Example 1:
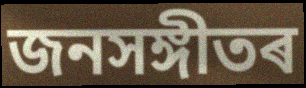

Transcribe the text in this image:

জনসঙ্গীতৰ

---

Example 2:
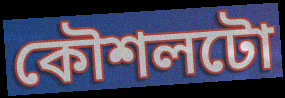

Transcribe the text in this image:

কৌশলটো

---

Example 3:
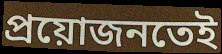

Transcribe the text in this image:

প্ৰয়োজনতেই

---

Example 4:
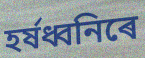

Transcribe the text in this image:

হৰ্ষধ্বনিৰে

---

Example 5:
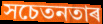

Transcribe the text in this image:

সচেতনতাৰ